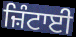
ਜ਼ਿੰਟਾਈ